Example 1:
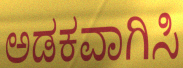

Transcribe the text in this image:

ಅಡಕವಾಗಿಸಿ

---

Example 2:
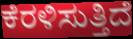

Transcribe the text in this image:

ಕೆರಳಿಸುತ್ತಿದೆ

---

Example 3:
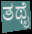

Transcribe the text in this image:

ತಥೈ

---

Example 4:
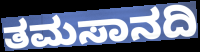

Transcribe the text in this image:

ತಮಸಾನದಿ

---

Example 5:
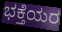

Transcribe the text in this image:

ಭಕ್ತೆಯರ